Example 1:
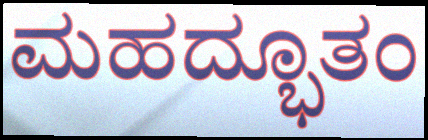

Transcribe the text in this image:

ಮಹದ್ಭೂತಂ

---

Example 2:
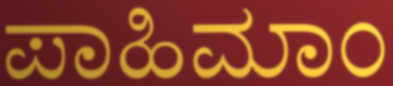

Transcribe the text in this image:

ಪಾಹಿಮಾಂ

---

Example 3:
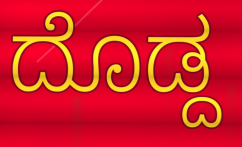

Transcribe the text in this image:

ದೊಡ್ದ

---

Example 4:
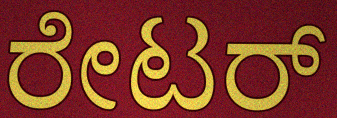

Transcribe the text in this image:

ರೇಟರ್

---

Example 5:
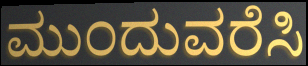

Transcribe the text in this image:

ಮುಂದುವರೆಸಿ